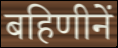
बहिणीनें